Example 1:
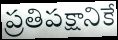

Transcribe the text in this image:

ప్రతిపక్షానికే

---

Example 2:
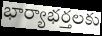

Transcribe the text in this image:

భార్యాభర్తలకు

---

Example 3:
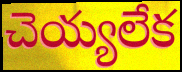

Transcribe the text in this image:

చెయ్యలేక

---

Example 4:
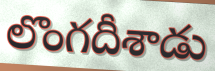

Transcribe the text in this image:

లొంగదీశాడు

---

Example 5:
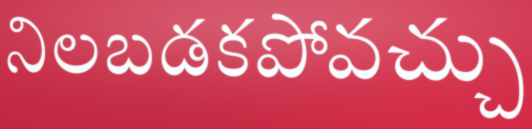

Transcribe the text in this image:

నిలబడకపోవచ్చు